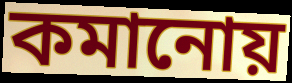
কমানোয়